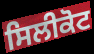
ਸਿਲੀਕੋਟ